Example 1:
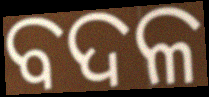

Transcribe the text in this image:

ବଦଳ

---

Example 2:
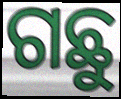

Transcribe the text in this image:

ଗଛୁ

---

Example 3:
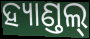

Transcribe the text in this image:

ହ୍ୟାଣ୍ଡଲ୍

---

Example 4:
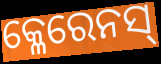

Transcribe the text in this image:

କ୍ଳେରେନସ୍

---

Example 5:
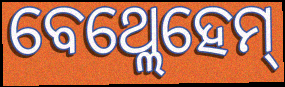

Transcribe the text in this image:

ବେଥ୍ଲେହେମ୍